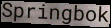
Springbok